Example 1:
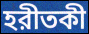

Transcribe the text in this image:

হরীতকী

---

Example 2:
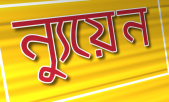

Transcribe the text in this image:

ন্যুয়েন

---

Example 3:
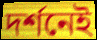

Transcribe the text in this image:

দর্শনেই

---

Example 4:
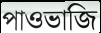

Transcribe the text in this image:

পাওভাজি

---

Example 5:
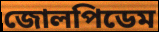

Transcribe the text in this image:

জোলপিডেম